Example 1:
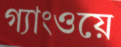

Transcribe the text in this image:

গ্যাংওয়ে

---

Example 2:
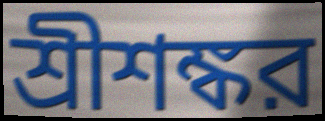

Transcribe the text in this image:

শ্রীশঙ্কর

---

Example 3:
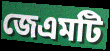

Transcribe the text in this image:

জেএমটি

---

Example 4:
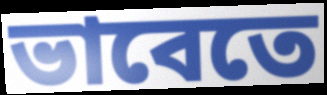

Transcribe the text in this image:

ভাবেতে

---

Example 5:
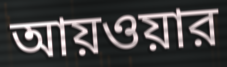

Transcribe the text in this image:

আয়ওয়ার